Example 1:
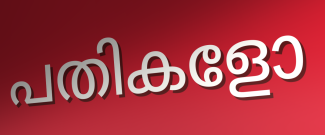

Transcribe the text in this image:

പതികളോ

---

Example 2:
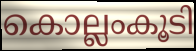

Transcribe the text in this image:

കൊല്ലംകൂടി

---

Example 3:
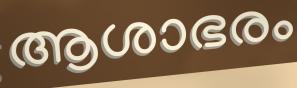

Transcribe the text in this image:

ആശാഭരം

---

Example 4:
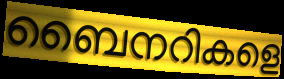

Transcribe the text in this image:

ബൈനറികളെ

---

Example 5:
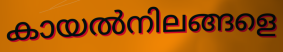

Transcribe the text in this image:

കായൽനിലങ്ങളെ